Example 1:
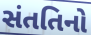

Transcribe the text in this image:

સંતતિનો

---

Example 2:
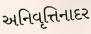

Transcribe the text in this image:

અનિવૃત્તિનાદર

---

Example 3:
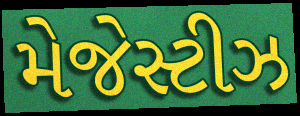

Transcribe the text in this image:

મેજેસ્ટીઝ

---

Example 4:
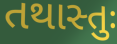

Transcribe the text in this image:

તથાસ્તુઃ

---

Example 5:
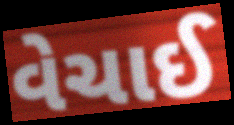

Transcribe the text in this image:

વેચાઈ